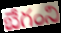
బేగంని